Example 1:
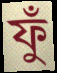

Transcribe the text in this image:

ফুঁ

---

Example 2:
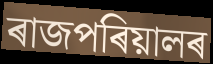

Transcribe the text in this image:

ৰাজপৰিয়ালৰ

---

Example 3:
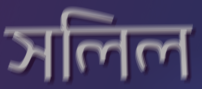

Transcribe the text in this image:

সলিল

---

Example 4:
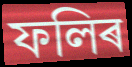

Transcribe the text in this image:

ফলিৰ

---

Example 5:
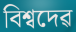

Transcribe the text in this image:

বিশ্বদেৱ